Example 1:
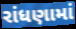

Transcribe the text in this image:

રાંધણામાં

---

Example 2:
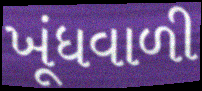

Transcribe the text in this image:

ખૂંધવાળી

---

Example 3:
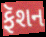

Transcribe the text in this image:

ફૅશન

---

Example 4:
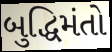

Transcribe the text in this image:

બુદ્ધિમંતો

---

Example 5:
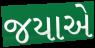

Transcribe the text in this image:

જયાએ